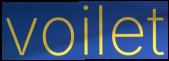
voilet